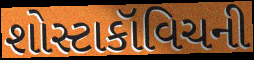
શોસ્ટાકૉવિચની